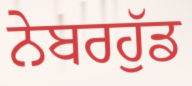
ਨੇਬਰਹੁੱਡ